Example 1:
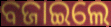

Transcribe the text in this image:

ବଜାଇଲେ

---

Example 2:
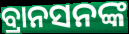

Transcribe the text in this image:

ବ୍ରାନସନଙ୍କ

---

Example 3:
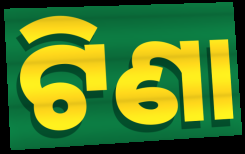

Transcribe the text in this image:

ଟିଣା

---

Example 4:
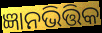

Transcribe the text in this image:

ଜ୍ଞାନଭିତ୍ତିକ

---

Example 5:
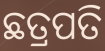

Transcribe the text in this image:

ଛତ୍ରପତି